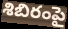
శిబిరంపై